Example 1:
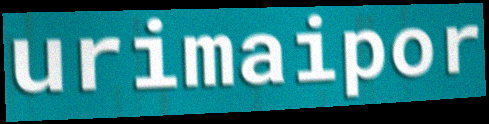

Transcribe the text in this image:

urimaipor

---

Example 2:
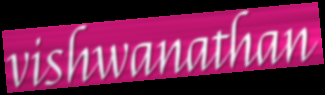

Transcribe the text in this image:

vishwanathan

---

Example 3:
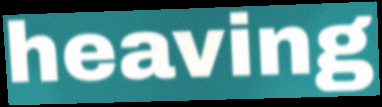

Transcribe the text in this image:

heaving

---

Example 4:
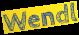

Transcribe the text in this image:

Wendl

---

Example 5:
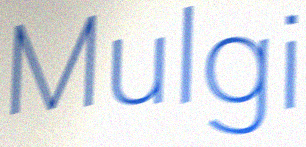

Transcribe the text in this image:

Mulgi